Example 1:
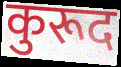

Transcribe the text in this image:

कुरूद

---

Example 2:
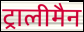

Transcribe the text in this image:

ट्रालीमैन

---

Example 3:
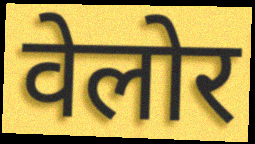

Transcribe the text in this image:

वेलोर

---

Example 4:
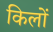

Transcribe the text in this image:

किलों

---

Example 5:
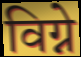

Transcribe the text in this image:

विग्ने